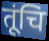
तूंचि